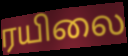
ரயிலை